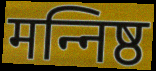
मन्निष्ठ